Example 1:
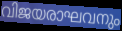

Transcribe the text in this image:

വിജയരാഘവനും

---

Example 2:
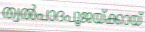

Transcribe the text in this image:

ത്വൽപാദപൂജയ്ക്കായ്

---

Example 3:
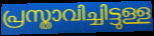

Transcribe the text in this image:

പ്രസ്താവിച്ചിട്ടുള്ള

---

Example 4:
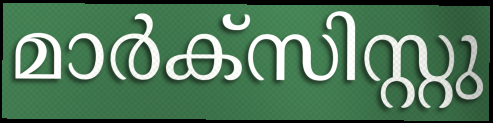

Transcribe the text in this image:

മാർക്സിസ്റ്റു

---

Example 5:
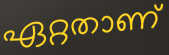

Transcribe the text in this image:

ഏറ്റതാണ്